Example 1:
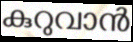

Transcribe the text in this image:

കുറുവാൻ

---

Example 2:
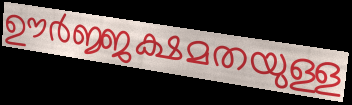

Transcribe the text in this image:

ഊർജ്ജക്ഷമതയുള്ള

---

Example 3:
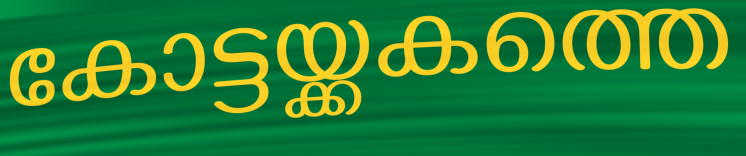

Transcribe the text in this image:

കോട്ടയ്ക്കകത്തെ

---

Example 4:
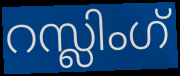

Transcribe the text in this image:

റസ്ലിംഗ്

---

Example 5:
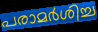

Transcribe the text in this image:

പരാമർശിച്ച